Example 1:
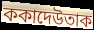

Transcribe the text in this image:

ককাদেউতাক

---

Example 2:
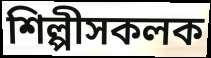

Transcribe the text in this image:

শিল্পীসকলক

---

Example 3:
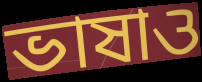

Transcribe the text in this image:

ভাষাও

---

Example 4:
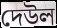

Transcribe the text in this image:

দেউল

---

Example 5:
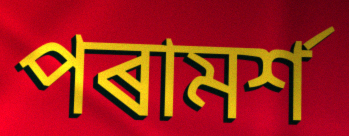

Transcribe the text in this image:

পৰামৰ্শ